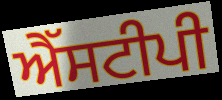
ਐੱਸਟੀਪੀ